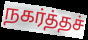
நகர்த்தச்